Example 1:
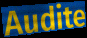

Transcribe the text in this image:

Audite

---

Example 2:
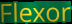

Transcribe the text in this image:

Flexor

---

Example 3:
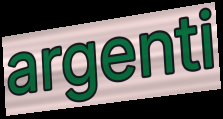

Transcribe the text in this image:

argenti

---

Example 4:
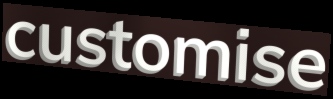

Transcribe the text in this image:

customise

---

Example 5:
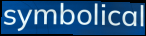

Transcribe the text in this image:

symbolical